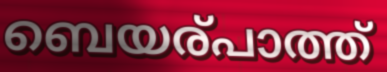
ബെയര്പാത്ത്